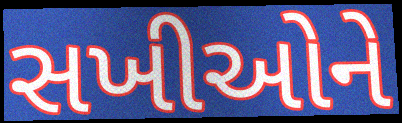
સખીઓને